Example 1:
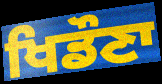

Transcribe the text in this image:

ਖਿਡੌਣਾ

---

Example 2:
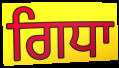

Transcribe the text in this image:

ਗਿਧਾ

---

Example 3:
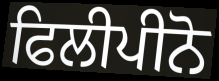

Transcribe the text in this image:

ਫਿਲੀਪੀਨੋ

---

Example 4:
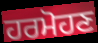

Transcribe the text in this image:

ਹਰਮੋਹਣ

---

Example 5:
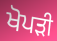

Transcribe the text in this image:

ਖੋਪੜੀ